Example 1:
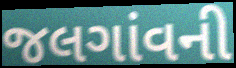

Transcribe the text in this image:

જલગાંવની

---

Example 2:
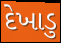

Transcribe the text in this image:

દેખાડુ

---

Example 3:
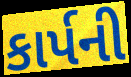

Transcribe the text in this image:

કાર્પની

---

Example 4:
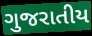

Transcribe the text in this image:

ગુજરાતીય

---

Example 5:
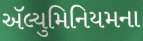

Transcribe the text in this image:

ઍલ્યુમિનિયમના